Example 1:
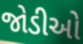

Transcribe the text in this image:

જોડીઓ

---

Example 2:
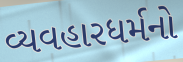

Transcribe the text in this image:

વ્યવહારધર્મનો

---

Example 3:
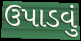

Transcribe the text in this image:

ઉપાડવું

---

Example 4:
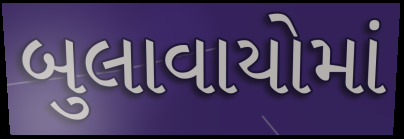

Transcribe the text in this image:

બુલાવાયોમાં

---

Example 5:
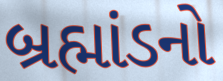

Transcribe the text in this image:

બ્રહ્માંડનો